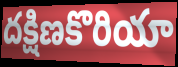
దక్షిణకొరియా